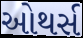
ઓથર્સ